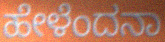
ಹೇಳೆಂದನಾ